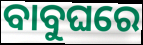
ବାବୁଘରେ